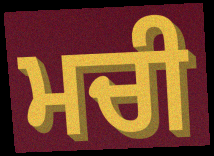
ਮਚੀ